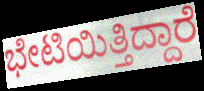
ಭೇಟಿಯಿತ್ತಿದ್ದಾರೆ